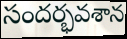
సందర్భవశాన